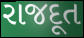
રાજદૂત